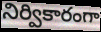
నిర్వికారంగా